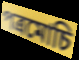
পত্রমোচি